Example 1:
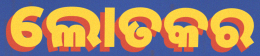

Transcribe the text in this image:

ଲୋତକର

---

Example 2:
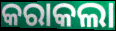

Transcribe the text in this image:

କରାକଲା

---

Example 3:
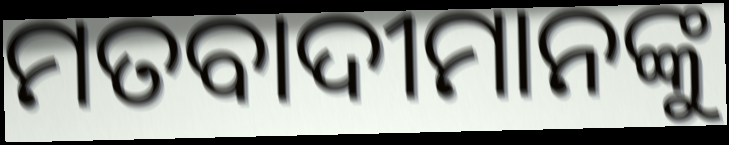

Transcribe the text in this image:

ମତବାଦୀମାନଙ୍କୁ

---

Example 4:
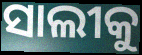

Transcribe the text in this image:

ସାଲୀକୁ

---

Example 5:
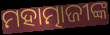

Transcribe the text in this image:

ମହାତ୍ମାଜୀଙ୍କ